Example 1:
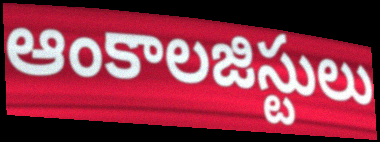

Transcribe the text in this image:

ఆంకాలజిస్టులు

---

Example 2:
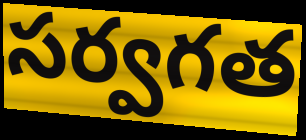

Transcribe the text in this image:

సర్వగత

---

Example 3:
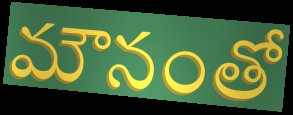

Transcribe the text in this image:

మౌనంతో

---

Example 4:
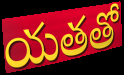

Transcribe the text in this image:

యతతో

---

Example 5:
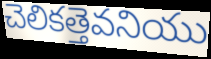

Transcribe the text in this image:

చెలికత్తెవనియు